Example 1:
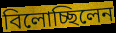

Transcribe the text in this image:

বিলোচ্ছিলেন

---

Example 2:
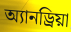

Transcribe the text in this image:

অ্যানড্রিয়া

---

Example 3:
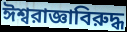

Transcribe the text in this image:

ঈশ্বরাজ্ঞাবিরুদ্ধ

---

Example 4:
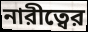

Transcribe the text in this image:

নারীত্বের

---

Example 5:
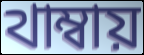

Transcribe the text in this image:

থাম্বায়